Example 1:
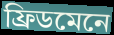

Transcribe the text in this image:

ফ্ৰিডমেনে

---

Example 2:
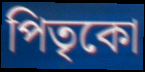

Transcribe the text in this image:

পিতৃকো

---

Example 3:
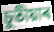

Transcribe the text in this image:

চুতীয়াৰ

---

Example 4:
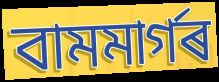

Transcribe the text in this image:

বামমাৰ্গৰ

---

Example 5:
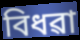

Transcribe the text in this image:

বিধৱা